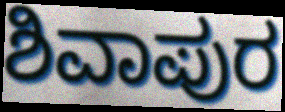
ಶಿವಾಪುರ